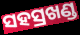
ସହସ୍ରଖଣ୍ଡ